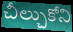
చీల్చుకోని